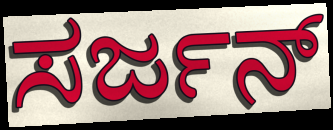
ಸರ್ಜನ್